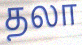
தலா